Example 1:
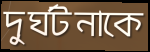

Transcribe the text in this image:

দুর্ঘটনাকে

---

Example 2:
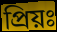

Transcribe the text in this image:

প্রিয়ঃ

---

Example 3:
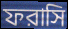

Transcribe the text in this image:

ফরাসি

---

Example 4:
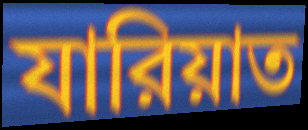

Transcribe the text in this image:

যারিয়াত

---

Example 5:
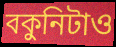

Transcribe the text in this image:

বকুনিটাও